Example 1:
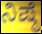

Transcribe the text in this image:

ನಿಷ್ಠೆ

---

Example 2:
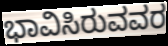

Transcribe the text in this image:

ಭಾವಿಸಿರುವವರ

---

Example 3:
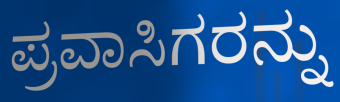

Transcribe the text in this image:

ಪ್ರವಾಸಿಗರನ್ನು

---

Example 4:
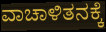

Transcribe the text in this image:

ವಾಚಾಳಿತನಕ್ಕೆ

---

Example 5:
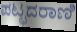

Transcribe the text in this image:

ಪಟ್ಟದರಾಣಿ